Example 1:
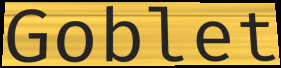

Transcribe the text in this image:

Goblet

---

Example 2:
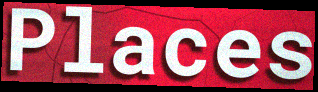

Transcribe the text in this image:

Places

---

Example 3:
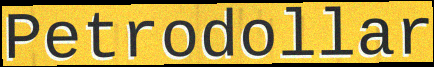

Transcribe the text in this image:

Petrodollar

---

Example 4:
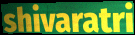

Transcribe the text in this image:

shivaratri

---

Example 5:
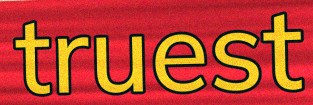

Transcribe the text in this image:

truest